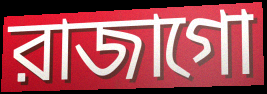
রাজাগো